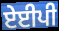
ਏਈਪੀ